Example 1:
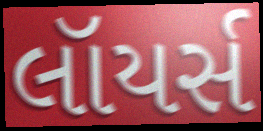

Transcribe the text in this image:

લૉયર્સ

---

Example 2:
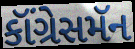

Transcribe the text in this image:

કૉંગ્રેસમૅન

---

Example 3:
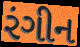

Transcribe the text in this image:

રંગીન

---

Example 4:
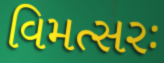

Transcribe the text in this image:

વિમત્સરઃ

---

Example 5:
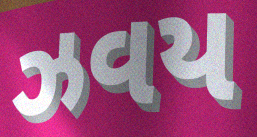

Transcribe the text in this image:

ઝવય